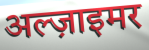
अल्ज़ाइमर